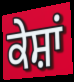
ਕੇਸ਼ਾਂ